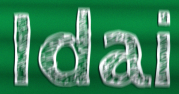
Idai